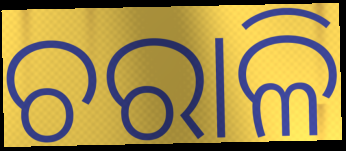
ଚରାଳି